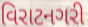
વિરાટનગરી